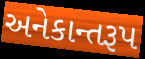
અનેકાન્તરૂપ